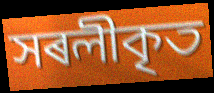
সৰলীকৃত